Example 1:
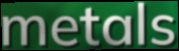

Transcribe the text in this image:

metals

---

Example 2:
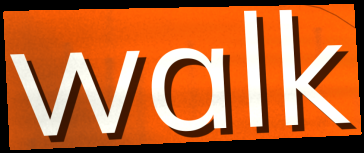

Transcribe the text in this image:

walk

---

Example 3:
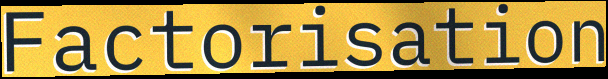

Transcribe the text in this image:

Factorisation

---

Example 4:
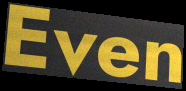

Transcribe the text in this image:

Even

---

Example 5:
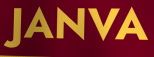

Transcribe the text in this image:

JANVA